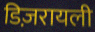
डिज़रायली